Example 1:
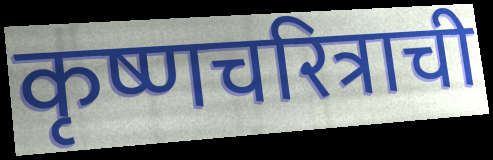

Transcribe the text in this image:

कृष्णचरित्राची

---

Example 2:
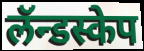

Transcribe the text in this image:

लॅन्डस्केप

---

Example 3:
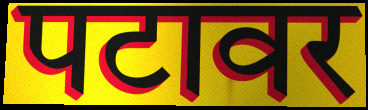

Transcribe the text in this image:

पटावर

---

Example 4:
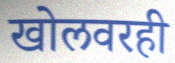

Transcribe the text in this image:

खोलवरही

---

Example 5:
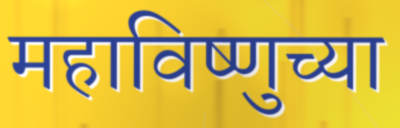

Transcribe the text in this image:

महाविष्णुच्या